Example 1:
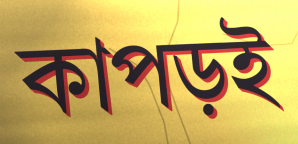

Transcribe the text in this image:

কাপড়ই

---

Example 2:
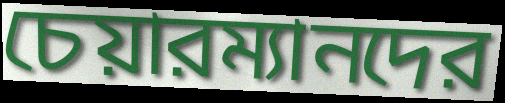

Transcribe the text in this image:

চেয়ারম্যানদের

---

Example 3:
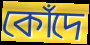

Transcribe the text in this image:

কোঁদে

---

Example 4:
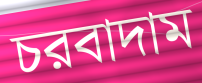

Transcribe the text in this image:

চরবাদাম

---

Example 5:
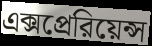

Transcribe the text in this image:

এক্সপ্রেরিয়েন্স